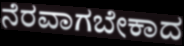
ನೆರವಾಗಬೇಕಾದ